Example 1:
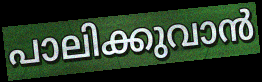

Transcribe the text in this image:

പാലിക്കുവാൻ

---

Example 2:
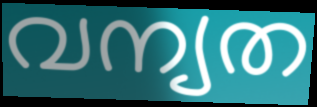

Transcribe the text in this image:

വന്യത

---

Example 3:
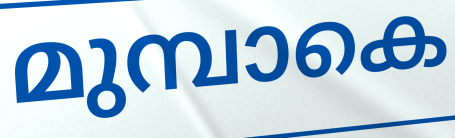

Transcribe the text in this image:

മുമ്പാകെ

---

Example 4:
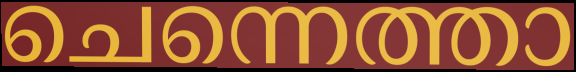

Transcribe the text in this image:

ചെന്നെത്താ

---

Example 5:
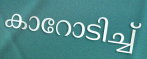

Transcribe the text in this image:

കാറോടിച്ച്